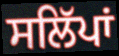
ਸਲਿੱਪਾਂ